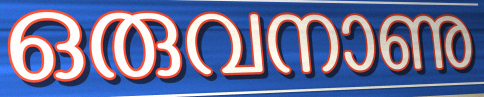
ഒരുവനാണു